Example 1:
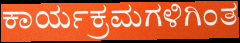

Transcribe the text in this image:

ಕಾರ್ಯಕ್ರಮಗಳಿಗಿಂತ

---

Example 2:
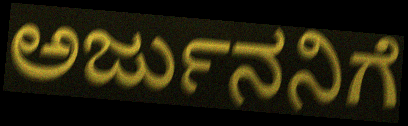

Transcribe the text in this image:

ಅರ್ಜುನನಿಗೆ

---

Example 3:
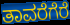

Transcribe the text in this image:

ತಾವರೆಗೆರೆ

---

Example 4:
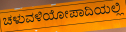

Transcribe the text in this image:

ಚಳುವಳಿಯೋಪಾದಿಯಲ್ಲಿ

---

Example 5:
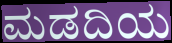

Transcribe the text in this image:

ಮಡದಿಯ